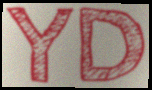
YD